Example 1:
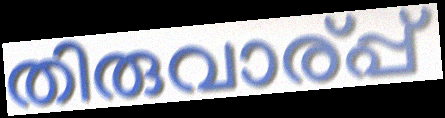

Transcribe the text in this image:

തിരുവാര്പ്പ്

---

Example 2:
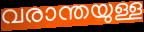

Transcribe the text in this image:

വരാന്തയുള്ള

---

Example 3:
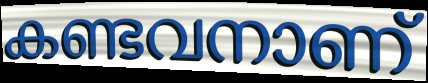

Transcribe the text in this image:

കണ്ടവനാണ്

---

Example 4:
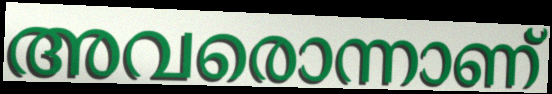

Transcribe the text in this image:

അവരൊന്നാണ്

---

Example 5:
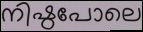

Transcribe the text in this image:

നിഷ്ഠപോലെ